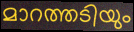
മാറത്തടിയും